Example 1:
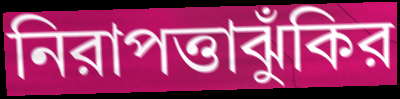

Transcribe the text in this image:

নিরাপত্তাঝুঁকির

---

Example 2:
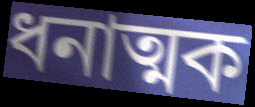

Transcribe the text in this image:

ধনাত্মক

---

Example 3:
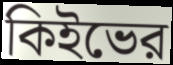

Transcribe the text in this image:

কিইভের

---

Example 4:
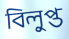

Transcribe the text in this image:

বিলুপ্ত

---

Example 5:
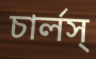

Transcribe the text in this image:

চার্লস্